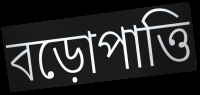
বড়োপাত্তি